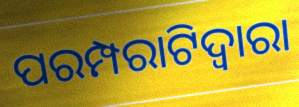
ପରମ୍ପରାଟିଦ୍ୱାରା